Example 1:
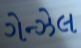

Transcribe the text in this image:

ગેન્ઝેલ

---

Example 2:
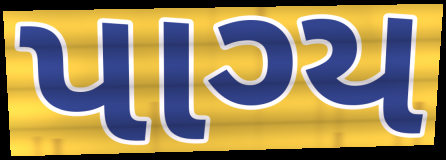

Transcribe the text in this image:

પાગ્ય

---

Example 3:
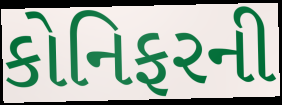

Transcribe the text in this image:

કોનિફરની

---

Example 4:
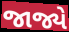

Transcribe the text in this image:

જાજ્યે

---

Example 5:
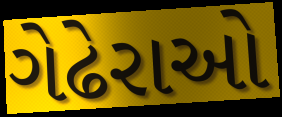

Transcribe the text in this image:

ગેઢેરાઓ